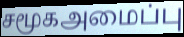
சமூகஅமைப்பு